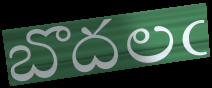
బొదలఁ